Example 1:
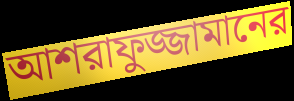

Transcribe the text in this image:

আশরাফুজ্জামানের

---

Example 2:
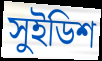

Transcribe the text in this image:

সুইডিশ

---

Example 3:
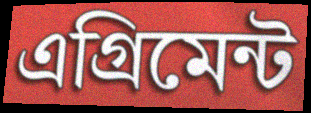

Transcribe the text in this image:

এগ্রিমেন্ট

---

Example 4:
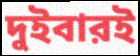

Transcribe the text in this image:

দুইবারই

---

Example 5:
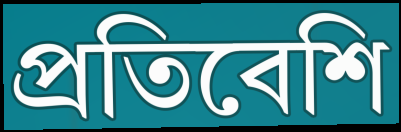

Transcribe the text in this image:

প্রতিবেশি